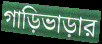
গাড়িভাড়ার